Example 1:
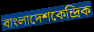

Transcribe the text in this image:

বাংলাদেশকেন্দ্রিক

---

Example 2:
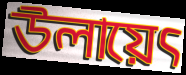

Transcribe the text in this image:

উলায়েৎ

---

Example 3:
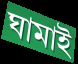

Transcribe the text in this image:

ঘামাই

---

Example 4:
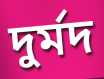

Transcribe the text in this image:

দুর্মদ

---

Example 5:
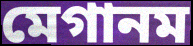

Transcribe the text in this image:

মেগানম